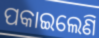
ପକାଇଲେଣି